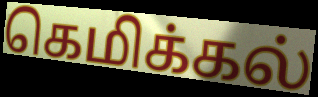
கெமிக்கல்